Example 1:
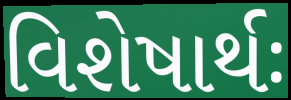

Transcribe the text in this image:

વિશેષાર્થઃ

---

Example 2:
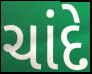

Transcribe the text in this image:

ચાંદે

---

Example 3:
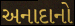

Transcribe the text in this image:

અનાદાનો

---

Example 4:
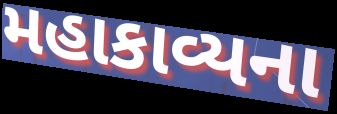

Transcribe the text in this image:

મહાકાવ્યના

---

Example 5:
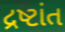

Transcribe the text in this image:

દ્રષ્ટાંત